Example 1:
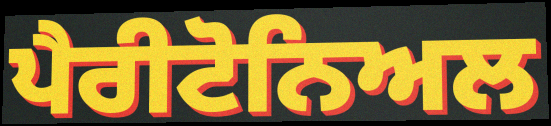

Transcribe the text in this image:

ਪੈਰੀਟੋਨਿਅਲ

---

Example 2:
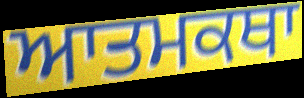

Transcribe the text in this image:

ਆਤਮਕਥਾ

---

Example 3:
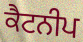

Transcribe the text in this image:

ਕੈਟਨੀਪ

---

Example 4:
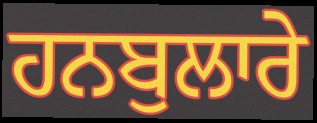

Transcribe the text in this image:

ਹਨਬੁਲਾਰੇ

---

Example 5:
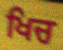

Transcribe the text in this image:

ਖਿਚ